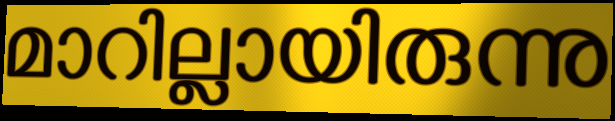
മാറില്ലായിരുന്നു